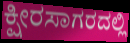
ಕ್ಷೀರಸಾಗರದಲ್ಲಿ